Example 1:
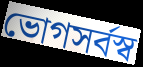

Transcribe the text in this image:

ভোগসর্বস্ব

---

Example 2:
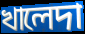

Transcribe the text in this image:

খালেদা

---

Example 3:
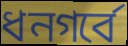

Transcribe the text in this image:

ধনগর্বে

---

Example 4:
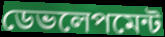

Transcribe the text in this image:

ডেভলেপমেন্ট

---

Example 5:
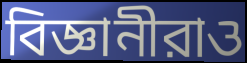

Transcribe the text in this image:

বিজ্ঞানীরাও